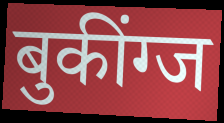
बुकींग्ज